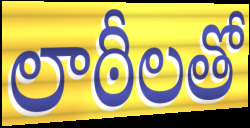
లాఠీలతో